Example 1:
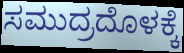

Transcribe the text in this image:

ಸಮುದ್ರದೊಳಕ್ಕೆ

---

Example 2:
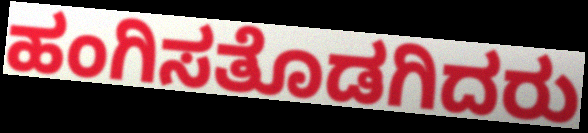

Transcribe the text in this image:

ಹಂಗಿಸತೊಡಗಿದರು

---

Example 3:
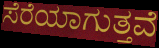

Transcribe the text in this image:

ಸೆರೆಯಾಗುತ್ತವೆ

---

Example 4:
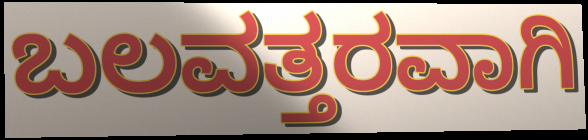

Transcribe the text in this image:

ಬಲವತ್ತರವಾಗಿ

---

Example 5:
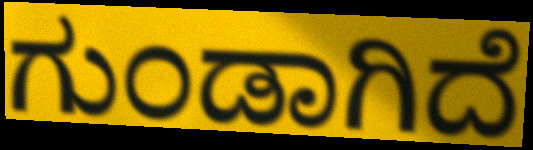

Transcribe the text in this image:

ಗುಂಡಾಗಿದೆ